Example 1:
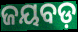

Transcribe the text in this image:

ଜୟବଡ଼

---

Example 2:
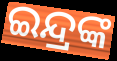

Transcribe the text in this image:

ଇନ୍ଦ୍ରଙ୍କ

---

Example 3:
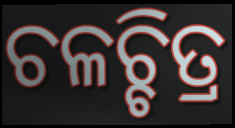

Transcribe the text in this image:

ଚଳଚ୍ଚିତ୍ର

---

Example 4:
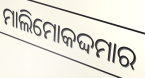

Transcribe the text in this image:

ମାଲିମୋକଦ୍ଦମାର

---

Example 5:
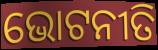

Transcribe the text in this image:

ଭୋଟନୀତି